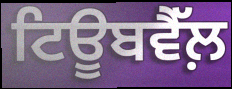
ਟਿਊਬਵੈੱਲ਼